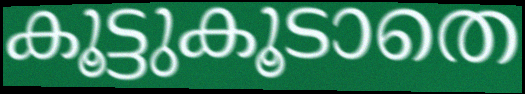
കൂട്ടുകൂടാതെ